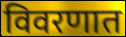
विवरणात